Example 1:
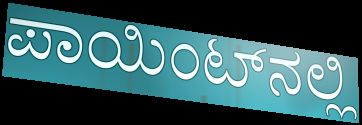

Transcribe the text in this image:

ಪಾಯಿಂಟ್‌ನಲ್ಲಿ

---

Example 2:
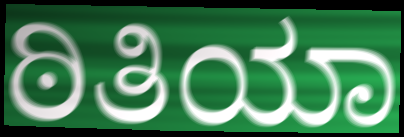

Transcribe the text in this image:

ಠಿತಿಯಾ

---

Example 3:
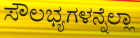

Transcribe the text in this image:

ಸೌಲಭ್ಯಗಳನ್ನೆಲ್ಲಾ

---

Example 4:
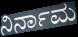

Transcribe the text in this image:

ನಿರ್ನಾಮ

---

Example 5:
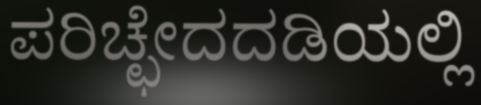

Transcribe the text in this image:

ಪರಿಚ್ಛೇದದಡಿಯಲ್ಲಿ